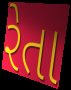
રેતા